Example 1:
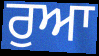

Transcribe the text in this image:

ਰੁਆ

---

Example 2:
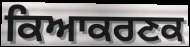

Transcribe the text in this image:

ਕਿਆਕਰਣਕ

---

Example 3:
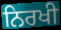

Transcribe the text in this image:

ਨਿਰਖੀ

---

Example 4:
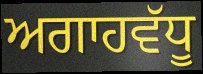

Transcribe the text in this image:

ਅਗਾਹਵੱਧੂ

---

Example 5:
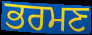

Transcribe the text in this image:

ਭਰਮਣ